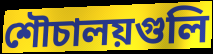
শৌচালয়গুলি